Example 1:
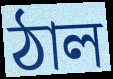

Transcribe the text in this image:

ঠাল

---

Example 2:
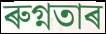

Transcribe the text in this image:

ৰুগ্নতাৰ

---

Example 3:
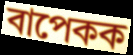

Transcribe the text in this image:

বাপেকক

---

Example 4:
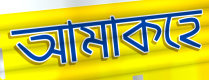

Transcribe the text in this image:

আমাকহে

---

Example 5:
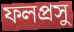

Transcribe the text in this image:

ফলপ্ৰসু